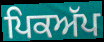
ਪਿਕਅੱਪ